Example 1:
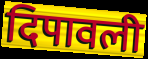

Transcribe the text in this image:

दिपावली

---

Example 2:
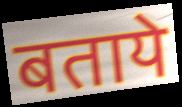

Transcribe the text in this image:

बताये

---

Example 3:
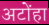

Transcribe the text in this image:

अटोंहा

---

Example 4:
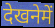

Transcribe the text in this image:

देखनेमें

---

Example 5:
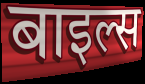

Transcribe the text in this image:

बाइल्स